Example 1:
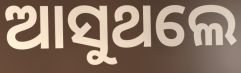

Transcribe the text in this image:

ଆସୁଥଲେ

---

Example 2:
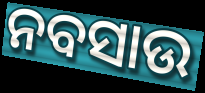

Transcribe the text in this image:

ନବସାଉ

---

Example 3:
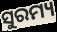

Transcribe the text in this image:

ସୁରମ୍ୟ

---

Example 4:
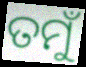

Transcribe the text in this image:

ତମୁଁ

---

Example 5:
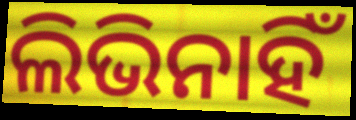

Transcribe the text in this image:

ଲିଭିନାହିଁ